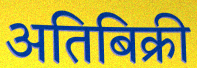
अतिबिक्री